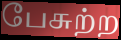
பேசுற்ற